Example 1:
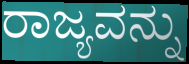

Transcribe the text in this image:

ರಾಜ್ಯವನ್ನು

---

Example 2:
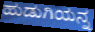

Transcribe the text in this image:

ಹುಡುಗಿಯನ್ನ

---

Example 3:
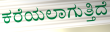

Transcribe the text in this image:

ಕರೆಯಲಾಗುತ್ತಿದೆ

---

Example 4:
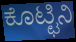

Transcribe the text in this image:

ಕೊಟ್ಟಿನಿ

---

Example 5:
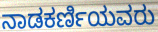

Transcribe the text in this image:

ನಾಡಕರ್ಣಿಯವರು